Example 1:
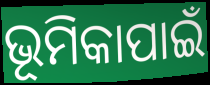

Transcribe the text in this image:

ଭୂମିକାପାଇଁ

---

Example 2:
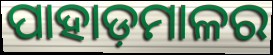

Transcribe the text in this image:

ପାହାଡ଼ମାଳର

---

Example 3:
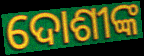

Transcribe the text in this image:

ଦୋଶୀଙ୍କ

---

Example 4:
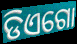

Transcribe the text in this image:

ଡିଏଗୋ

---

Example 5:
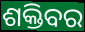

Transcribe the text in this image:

ଶକ୍ତିବର